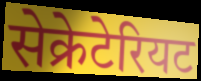
सेक्रेटेरियट